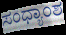
ಸಂಧ್ಯಾಂಶ